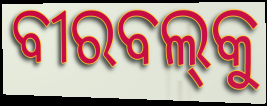
ବୀରବଲ୍‌କୁ